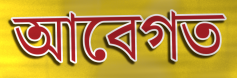
আবেগত